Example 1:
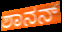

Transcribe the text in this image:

ಶಾನನ್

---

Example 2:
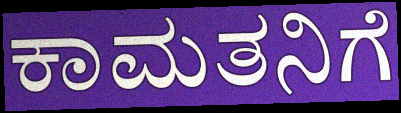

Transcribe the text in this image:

ಕಾಮತನಿಗೆ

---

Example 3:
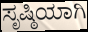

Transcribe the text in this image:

ಸೃಷ್ಠಿಯಾಗಿ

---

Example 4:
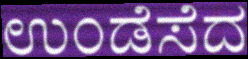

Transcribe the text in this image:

ಉಂಡೆಸೆದ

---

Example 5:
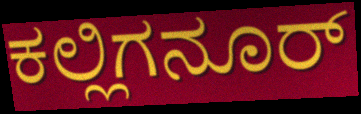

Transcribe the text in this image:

ಕಲ್ಲಿಗನೂರ್